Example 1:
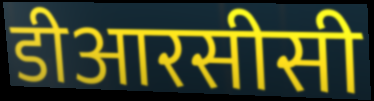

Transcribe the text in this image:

डीआरसीसी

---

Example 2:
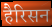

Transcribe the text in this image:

हैरिसन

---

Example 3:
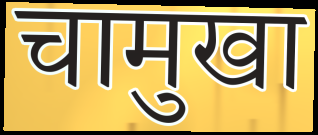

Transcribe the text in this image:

चामुखा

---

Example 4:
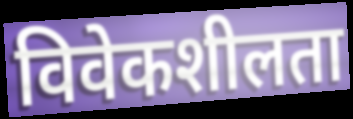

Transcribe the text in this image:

विवेकशीलता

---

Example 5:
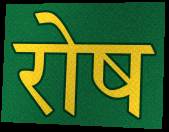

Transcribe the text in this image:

रोष